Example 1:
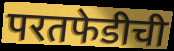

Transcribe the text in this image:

परतफेडीची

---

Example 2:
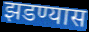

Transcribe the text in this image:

झडण्यास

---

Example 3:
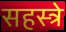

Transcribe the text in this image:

सहस्त्रे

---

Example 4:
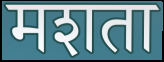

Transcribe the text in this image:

मशता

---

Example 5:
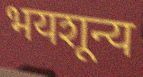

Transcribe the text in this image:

भयशून्य